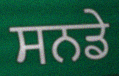
ਸਨਡੇ